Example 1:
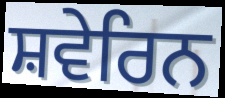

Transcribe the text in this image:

ਸ਼ਵੇਰਿਨ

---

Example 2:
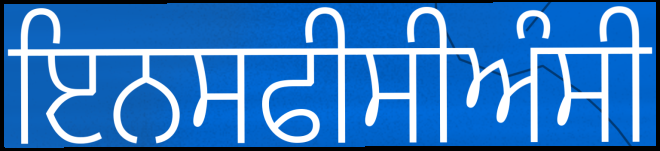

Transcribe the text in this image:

ਇਨਸਫੀਸੀਅੰਸੀ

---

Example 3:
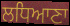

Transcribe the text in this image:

ਲਧਿਆਣਾ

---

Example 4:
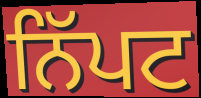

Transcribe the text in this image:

ਨਿੱਪਟ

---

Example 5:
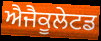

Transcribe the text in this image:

ਐਜੈਕੂਲੇਟਡ